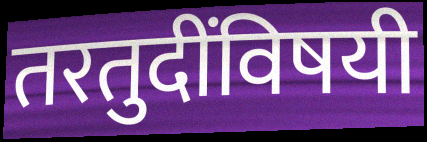
तरतुदींविषयी